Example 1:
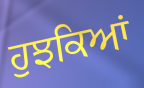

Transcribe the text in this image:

ਹੁਝਕਿਆਂ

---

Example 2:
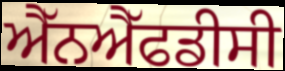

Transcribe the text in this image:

ਐੱਨਐੱਫਡੀਸੀ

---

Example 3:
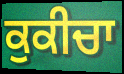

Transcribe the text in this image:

ਕੁਕੀਚਾ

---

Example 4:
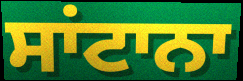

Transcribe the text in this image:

ਸਾਂਟਾਨਾ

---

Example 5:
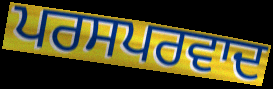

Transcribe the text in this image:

ਪਰਸਪਰਵਾਦ